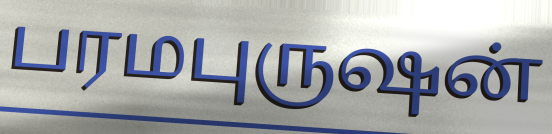
பரமபுருஷன்